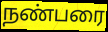
நண்பரை